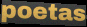
poetas